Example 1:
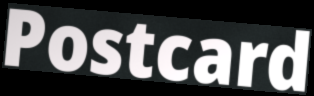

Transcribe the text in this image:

Postcard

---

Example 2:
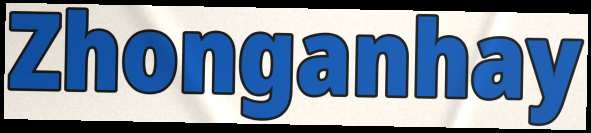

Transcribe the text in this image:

Zhonganhay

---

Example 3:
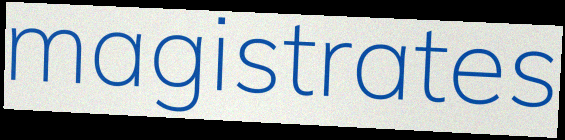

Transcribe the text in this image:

magistrates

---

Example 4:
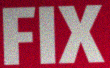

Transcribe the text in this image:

FIX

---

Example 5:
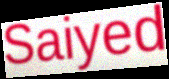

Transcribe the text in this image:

Saiyed